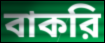
বাকরি